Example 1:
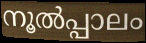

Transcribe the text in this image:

നൂൽപ്പാലം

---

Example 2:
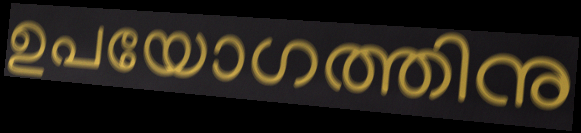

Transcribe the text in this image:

ഉപയോഗത്തിനു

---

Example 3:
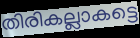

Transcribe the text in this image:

തിരികല്ലാകട്ടെ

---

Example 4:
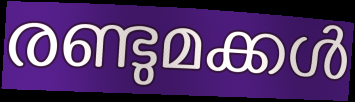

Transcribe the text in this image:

രണ്ടുമക്കൾ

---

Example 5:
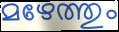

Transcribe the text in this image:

മഴേത്തും